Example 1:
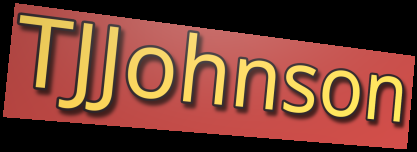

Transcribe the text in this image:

TJJohnson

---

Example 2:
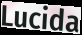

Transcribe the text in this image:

Lucida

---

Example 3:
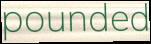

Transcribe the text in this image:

pounded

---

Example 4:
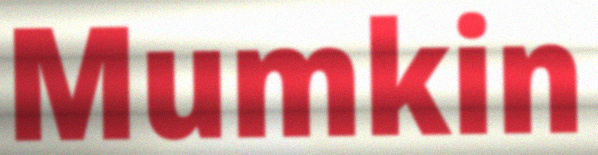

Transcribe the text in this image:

Mumkin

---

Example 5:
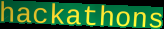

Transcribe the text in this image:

hackathons